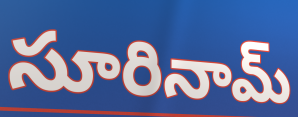
సూరినామ్